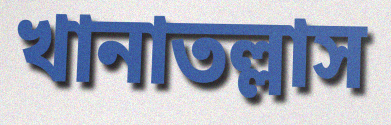
খানাতল্লাস